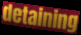
detaining